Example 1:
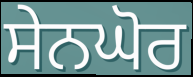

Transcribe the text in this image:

ਸੇਨਘੋਰ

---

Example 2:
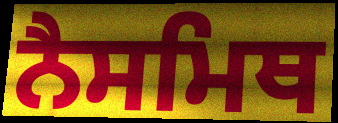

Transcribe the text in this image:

ਨੈਸਮਿਥ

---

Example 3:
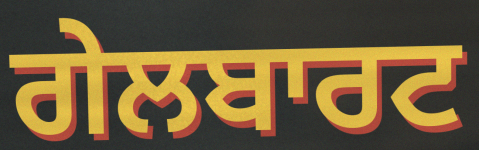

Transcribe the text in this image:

ਗੇਲਬਾਰਟ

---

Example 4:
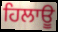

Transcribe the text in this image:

ਹਿਲਾਊ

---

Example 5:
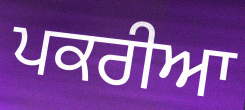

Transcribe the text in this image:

ਪਕਰੀਆ